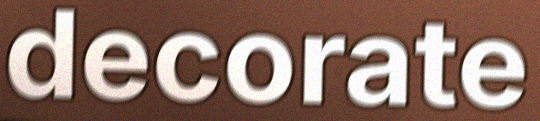
decorate